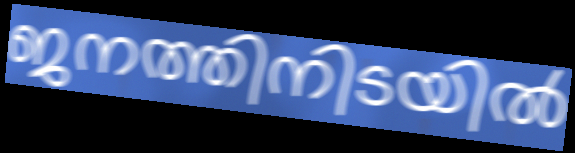
ജനത്തിനിടയിൽ